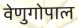
वेणुगोपाल